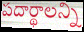
పదార్థాలన్ని